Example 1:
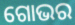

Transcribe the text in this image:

ଗୋଭର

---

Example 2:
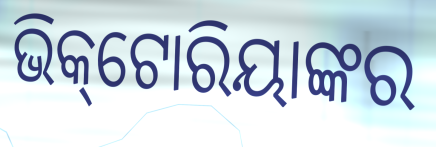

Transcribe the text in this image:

ଭିକ୍‌ଟୋରିୟାଙ୍କର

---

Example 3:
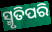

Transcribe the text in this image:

ସ୍ମୃତିପରି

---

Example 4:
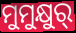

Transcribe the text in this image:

ମୁମୁକ୍ଷୁର୍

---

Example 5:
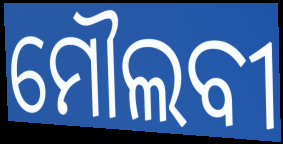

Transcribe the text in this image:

ମୌଲବୀ